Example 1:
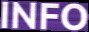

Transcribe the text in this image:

INFO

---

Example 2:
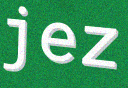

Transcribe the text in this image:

jez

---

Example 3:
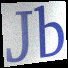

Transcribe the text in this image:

Jb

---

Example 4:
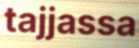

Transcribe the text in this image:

tajjassa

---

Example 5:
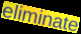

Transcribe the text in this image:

eliminate